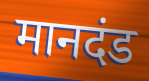
मानदंड